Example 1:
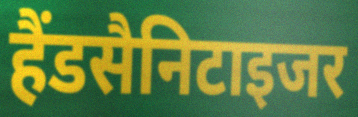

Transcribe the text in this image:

हैंडसैनिटाइजर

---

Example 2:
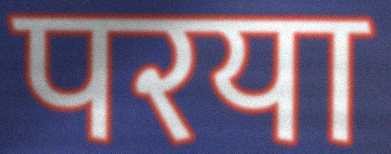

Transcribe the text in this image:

परया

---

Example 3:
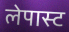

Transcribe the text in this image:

लेपास्ट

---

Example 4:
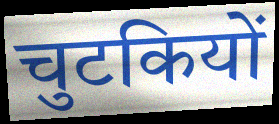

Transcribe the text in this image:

चुटकियों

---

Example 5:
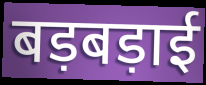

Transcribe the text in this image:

बड़बड़ाई